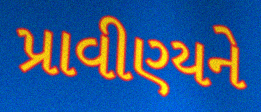
પ્રાવીણ્યને